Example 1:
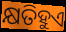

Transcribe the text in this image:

କ୍ଷତିହୁଏ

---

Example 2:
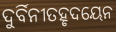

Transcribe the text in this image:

ଦୁର୍ବିନୀତହୃଦୟେନ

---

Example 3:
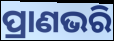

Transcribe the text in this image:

ପ୍ରାଣଭରି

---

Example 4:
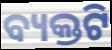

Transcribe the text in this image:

ବ୍ୟକ୍ତଟି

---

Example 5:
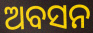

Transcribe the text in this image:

ଅବସନ